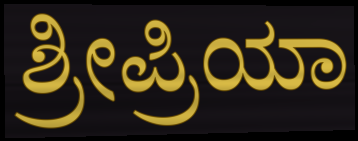
ಶ್ರೀಪ್ರಿಯಾ